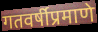
गतवर्षीप्रमाणे